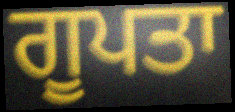
ਗੂਪਤਾ